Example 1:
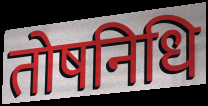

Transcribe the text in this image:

तोषनिधि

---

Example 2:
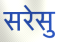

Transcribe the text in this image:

सरेसु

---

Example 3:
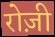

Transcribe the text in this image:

रोज़ी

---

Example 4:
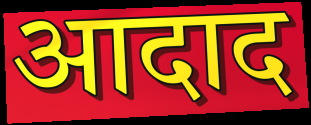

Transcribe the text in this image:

आदाद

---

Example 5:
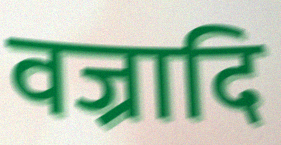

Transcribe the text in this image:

वज्रादि